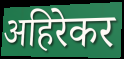
अहिरेकर